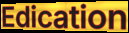
Edication